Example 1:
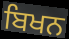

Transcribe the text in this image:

ਬਿਖਨ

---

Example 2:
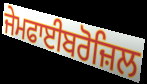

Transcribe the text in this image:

ਜੇਮਫਾਈਬਰੋਜ਼ਿਲ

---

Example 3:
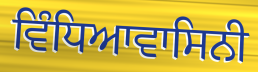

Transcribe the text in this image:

ਵਿੰਧਿਆਵਾਸਿਨੀ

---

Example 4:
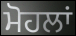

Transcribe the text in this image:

ਮੋਹਲਾਂ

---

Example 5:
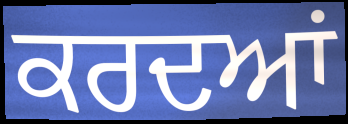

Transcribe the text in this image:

ਕਰਦਆਂ